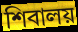
শিবালয়